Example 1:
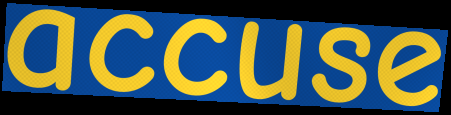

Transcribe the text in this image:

accuse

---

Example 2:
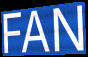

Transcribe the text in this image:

FAN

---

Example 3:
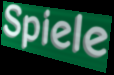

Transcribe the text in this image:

Spiele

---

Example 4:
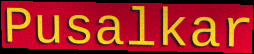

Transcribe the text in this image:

Pusalkar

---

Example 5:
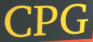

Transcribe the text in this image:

CPG